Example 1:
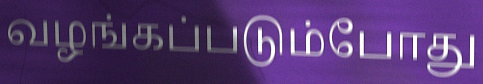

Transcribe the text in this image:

வழங்கப்படும்போது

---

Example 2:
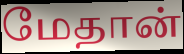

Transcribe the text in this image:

மேதான்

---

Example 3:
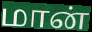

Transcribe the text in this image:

மான்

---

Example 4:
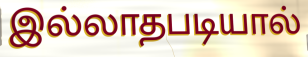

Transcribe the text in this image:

இல்லாதபடியால்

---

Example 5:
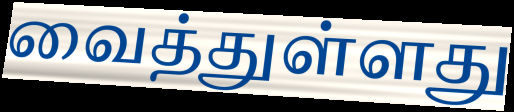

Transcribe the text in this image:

வைத்துள்ளது